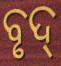
ବୃଦ୍